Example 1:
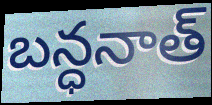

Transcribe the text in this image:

బన్ధనాత్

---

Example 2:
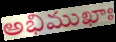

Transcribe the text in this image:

అభిముఖాః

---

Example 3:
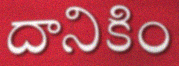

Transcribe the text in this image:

దానికిం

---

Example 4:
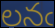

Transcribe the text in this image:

లనఁ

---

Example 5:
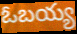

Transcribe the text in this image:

ఓబయ్య